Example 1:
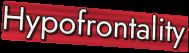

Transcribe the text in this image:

Hypofrontality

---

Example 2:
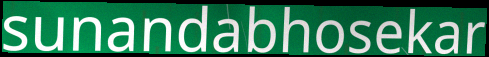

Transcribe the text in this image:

sunandabhosekar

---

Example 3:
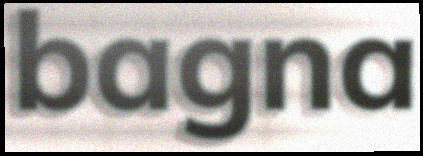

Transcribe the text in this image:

bagna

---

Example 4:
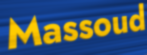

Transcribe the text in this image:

Massoud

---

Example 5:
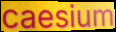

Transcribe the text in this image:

caesium